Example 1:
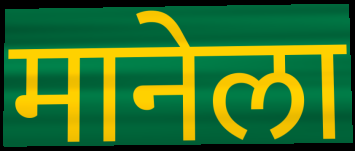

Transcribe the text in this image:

मानेला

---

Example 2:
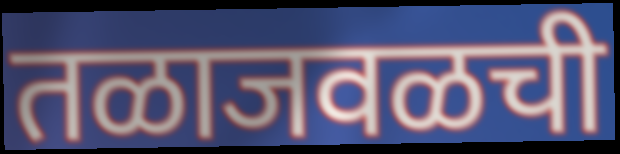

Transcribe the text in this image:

तळाजवळची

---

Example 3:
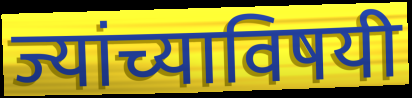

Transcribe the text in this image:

ज्यांच्याविषयी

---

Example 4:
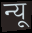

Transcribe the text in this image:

न्यू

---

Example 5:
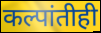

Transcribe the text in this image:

कल्पांतीही